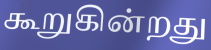
கூறுகின்றது